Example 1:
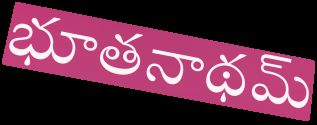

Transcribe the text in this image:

భూతనాథమ్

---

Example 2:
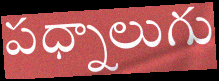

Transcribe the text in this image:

పధ్నాలుగు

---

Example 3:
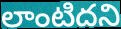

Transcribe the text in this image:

లాంటిదని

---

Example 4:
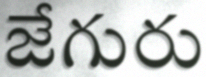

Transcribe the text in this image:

జేగురు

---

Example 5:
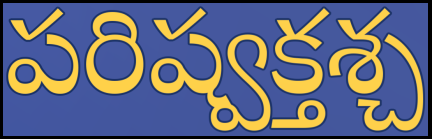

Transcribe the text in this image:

పరిష్వక్తశ్చ